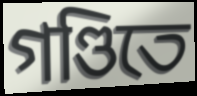
গণ্ডিতে